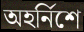
অহৰ্নিশে